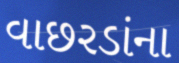
વાછરડાંના